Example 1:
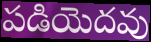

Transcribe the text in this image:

పడియెదవు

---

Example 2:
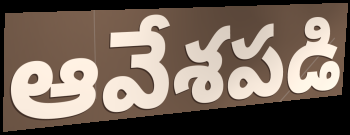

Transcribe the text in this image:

ఆవేశపడి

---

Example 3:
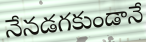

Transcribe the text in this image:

నేనడగకుండానే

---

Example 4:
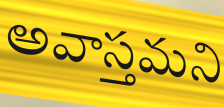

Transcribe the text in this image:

అవాస్తమని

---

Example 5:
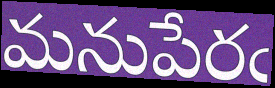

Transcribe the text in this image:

మనుపేరఁ